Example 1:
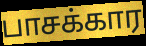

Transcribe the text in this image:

பாசக்கார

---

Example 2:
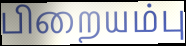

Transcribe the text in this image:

பிறையம்பு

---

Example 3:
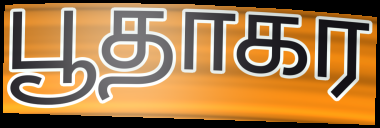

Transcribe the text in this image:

பூதாகர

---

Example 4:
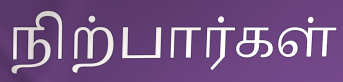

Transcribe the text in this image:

நிற்பார்கள்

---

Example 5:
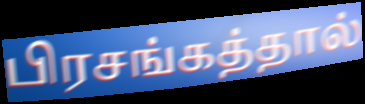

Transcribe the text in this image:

பிரசங்கத்தால்